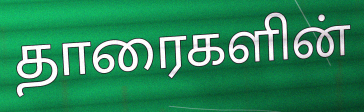
தாரைகளின்